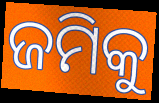
ଜମିକୁ